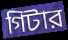
গিটার